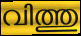
വിത്തു